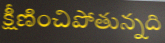
క్షీణించిపోతున్నది